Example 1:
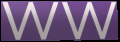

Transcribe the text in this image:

WW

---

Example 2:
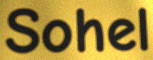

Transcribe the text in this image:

Sohel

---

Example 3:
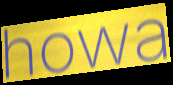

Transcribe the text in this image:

howa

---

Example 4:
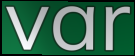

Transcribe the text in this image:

var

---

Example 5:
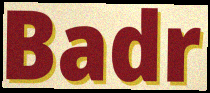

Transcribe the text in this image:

Badr